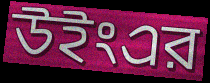
উইংএর